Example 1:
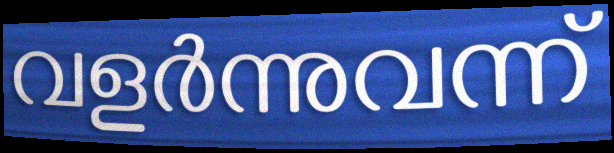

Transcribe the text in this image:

വളർന്നുവന്ന്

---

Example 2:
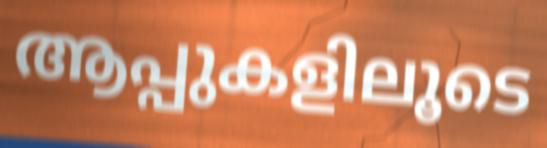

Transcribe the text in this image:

ആപ്പുകളിലൂടെ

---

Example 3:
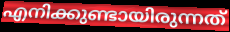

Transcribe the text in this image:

എനിക്കുണ്ടായിരുന്നത്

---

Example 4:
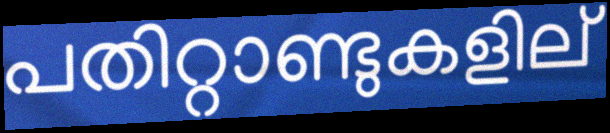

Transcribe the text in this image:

പതിറ്റാണ്ടുകളില്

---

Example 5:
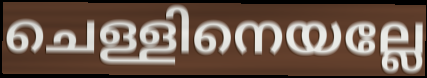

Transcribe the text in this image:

ചെള്ളിനെയല്ലേ